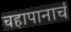
चहापानाचं